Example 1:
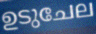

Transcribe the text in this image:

ഉടുചേല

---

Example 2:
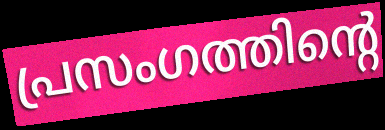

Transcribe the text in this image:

പ്രസംഗത്തിന്റെ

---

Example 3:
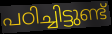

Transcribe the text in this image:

പഠിച്ചിട്ടുണ്ട്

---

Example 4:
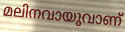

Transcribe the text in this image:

മലിനവായുവാണ്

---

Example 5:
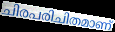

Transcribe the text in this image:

ചിരപരിചിതമാണ്